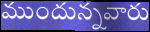
ముందున్నవారు